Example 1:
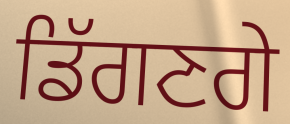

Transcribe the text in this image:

ਡਿੱਗਣਗੇ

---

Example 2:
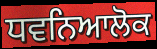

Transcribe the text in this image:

ਧਵਨਿਆਲੋਕ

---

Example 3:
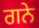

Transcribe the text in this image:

ਗਨੇ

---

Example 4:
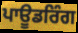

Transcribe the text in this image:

ਪਾਊਡਰਿੰਗ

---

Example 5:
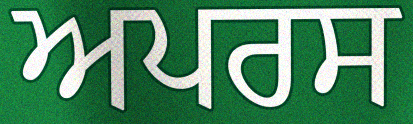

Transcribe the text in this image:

ਅਪਰਸ